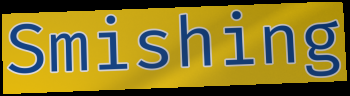
Smishing